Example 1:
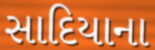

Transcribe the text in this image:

સાદિયાના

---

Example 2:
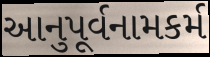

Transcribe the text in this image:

આનુપૂર્વનામકર્મ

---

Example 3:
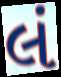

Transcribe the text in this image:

લં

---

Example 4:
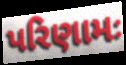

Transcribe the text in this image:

પરિણામઃ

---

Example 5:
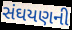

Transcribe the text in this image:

સંઘયણની